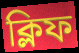
ক্লিফ